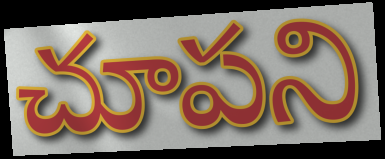
చూపని